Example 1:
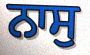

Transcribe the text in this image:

ਨਾਸੁ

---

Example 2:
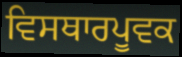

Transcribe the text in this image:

ਵਿਸਥਾਰਪੂਵਕ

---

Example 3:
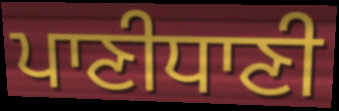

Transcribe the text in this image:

ਪਾਣੀਧਾਣੀ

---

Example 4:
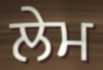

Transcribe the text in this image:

ਲੇਮ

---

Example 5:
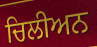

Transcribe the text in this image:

ਚਿਲੀਅਨ